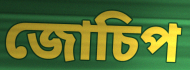
জোচিপ